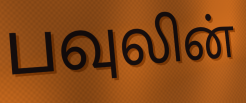
பவுலின்